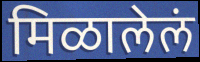
मिळालेलं